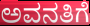
ಅವನತಿಗೆ